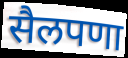
सैलपणा